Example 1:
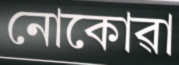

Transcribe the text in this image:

নোকোৱা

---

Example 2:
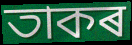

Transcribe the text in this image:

তাকৰ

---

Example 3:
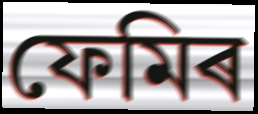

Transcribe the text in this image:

ফেমিৰ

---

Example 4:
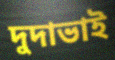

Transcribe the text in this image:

দুদাভাই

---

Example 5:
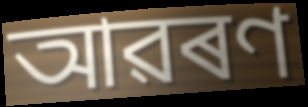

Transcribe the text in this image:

আৱৰণ